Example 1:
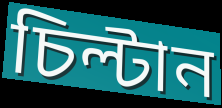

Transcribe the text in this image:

চিল্টান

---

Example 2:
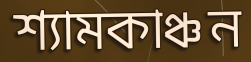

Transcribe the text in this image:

শ্যামকাঞ্চন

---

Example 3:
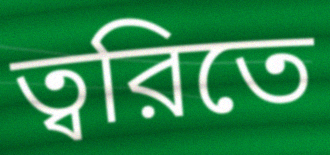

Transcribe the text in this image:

ত্বরিতে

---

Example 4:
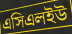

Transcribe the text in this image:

এসিএলইউ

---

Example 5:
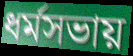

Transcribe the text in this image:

ধর্মসভায়